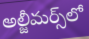
అల్జీమర్స్‌లో